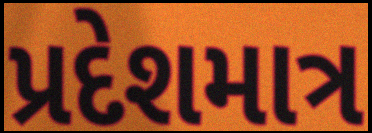
પ્રદેશમાત્ર